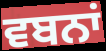
ਵਬਨਾਂ